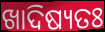
ଖାଦିଷ୍ଯତଃ